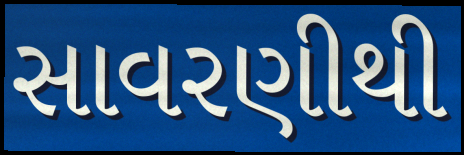
સાવરણીથી